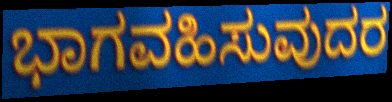
ಭಾಗವಹಿಸುವುದರ